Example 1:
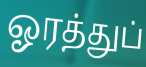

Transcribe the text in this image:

ஓரத்துப்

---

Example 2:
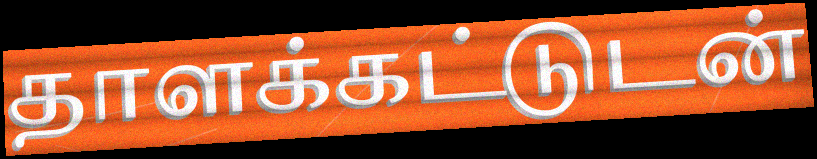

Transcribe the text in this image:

தாளக்கட்டுடன்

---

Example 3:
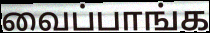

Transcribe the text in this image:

வைப்பாங்க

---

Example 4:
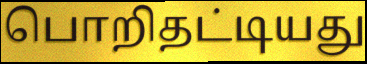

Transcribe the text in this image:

பொறிதட்டியது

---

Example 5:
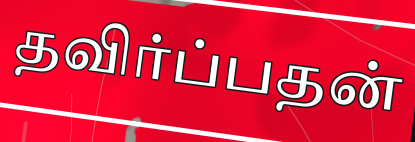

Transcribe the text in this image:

தவிர்ப்பதன்